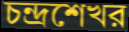
চন্দ্রশেখর